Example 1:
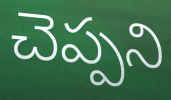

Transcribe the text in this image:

చెప్పని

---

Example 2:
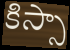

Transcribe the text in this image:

కిస్సా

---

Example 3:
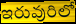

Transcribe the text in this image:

ఇరువురిలో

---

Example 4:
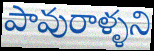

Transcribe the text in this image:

పావురాళ్ళని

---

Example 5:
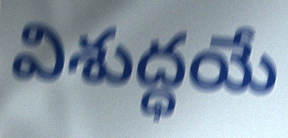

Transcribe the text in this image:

విశుద్ధయే